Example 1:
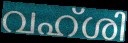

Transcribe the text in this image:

വഹ്ശി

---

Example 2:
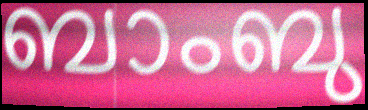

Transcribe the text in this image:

ബാംബു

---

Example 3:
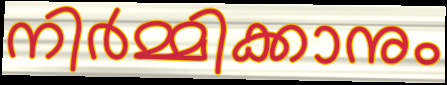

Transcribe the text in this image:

നിർമ്മിക്കാനും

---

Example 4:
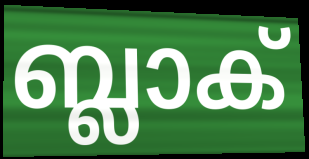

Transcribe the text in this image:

ബ്ലാക്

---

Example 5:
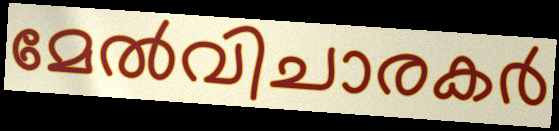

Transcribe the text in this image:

മേൽവിചാരകർ